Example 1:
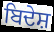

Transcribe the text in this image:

ਬਿਦੇਸ਼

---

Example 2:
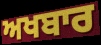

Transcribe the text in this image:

ਅਖਬਾਰ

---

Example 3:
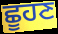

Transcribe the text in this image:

ਛੂਹਣ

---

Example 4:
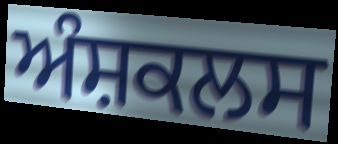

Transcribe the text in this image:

ਅੰਸ਼ਕਲਸ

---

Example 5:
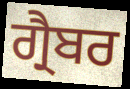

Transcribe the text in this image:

ਗ੍ਰੈਬਰ